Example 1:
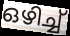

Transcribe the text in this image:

ഒഴിച്ച്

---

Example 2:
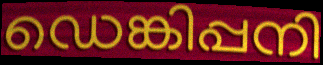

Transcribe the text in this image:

ഡെങ്കിപ്പനി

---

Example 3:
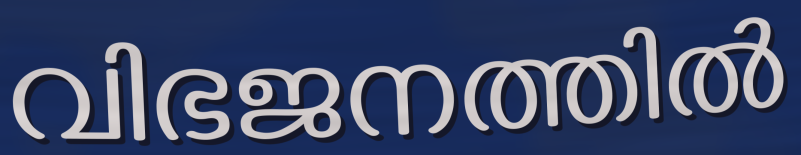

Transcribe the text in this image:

വിഭജനത്തിൽ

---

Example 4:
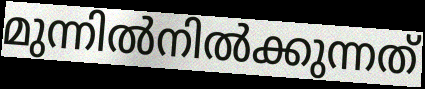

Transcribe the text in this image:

മുന്നിൽനിൽക്കുന്നത്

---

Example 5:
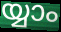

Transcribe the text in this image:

യ്യാം